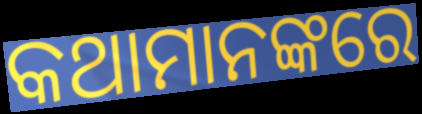
କଥାମାନଙ୍କରେ